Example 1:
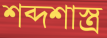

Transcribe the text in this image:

শব্দশাস্ত্র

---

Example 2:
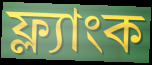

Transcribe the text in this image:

ফ্ল্যাংক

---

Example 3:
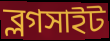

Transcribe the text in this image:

ব্লগসাইট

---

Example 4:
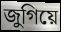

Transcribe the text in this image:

জুগিয়ে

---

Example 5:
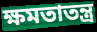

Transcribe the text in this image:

ক্ষমতাতন্ত্র